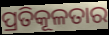
ପ୍ରତିକୂଳତାର